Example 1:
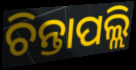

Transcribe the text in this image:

ଚିନ୍ତାପଲ୍ଲି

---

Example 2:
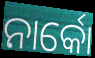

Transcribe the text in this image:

ନାର୍କୋ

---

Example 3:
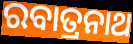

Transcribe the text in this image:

ରବାତ୍ରନାଥ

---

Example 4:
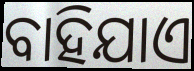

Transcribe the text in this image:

ବାହିଯାଏ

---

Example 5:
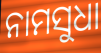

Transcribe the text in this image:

ନାମସୁଧା